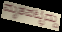
ಮೃತಪಟ್ಟದ್ದು